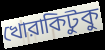
খোরাকিটুকু